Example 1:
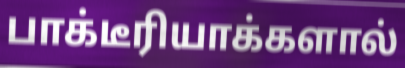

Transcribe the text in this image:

பாக்டீரியாக்களால்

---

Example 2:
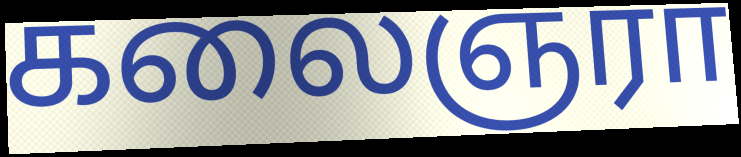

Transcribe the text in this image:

கலைஞரா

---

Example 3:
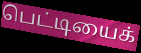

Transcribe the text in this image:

பெட்டியைக்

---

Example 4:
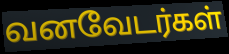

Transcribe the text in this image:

வனவேடர்கள்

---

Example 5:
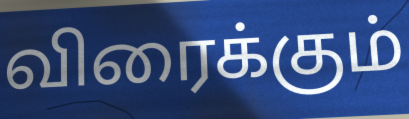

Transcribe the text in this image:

விரைக்கும்